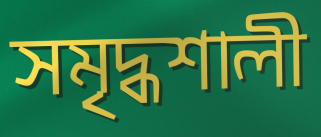
সমৃদ্ধশালী